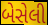
બેસેલી